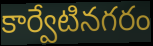
కార్వేటినగరం